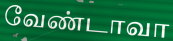
வேண்டாவா